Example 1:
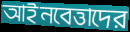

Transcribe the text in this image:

আইনবেত্তাদের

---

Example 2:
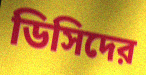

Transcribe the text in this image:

ডিসিদের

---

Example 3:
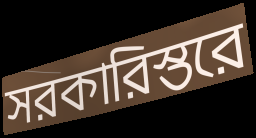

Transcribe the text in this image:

সরকারিস্তরে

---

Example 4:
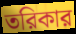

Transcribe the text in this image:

তরিকার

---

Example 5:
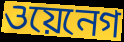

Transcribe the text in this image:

ওয়েনেগ